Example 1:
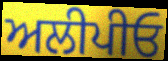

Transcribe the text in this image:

ਅਲੀਪੀਓ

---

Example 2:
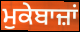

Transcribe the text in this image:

ਮੁਕੇਬਾਜ਼ਾਂ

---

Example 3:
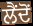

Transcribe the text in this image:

ਲੈਂਦੋਂ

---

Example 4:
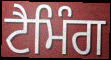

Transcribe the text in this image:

ਟੈਮਿੰਗ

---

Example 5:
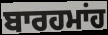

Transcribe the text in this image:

ਬਾਰਹਮਾਂਹ